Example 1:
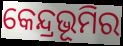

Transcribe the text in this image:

କେନ୍ଦ୍ରଭୂମିର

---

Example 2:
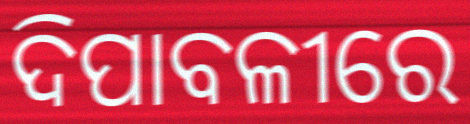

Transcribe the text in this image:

ଦିପାବଳୀରେ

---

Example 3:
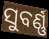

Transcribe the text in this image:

ସୁବର୍ଣ୍ଣ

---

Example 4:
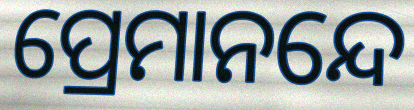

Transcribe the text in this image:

ପ୍ରେମାନନ୍ଦେ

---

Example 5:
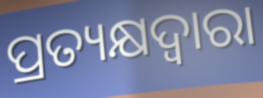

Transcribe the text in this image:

ପ୍ରତ୍ୟକ୍ଷଦ୍ବାରା